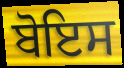
ਬੋਇਸ